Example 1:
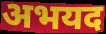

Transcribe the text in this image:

अभयद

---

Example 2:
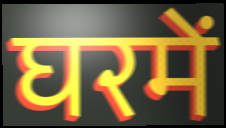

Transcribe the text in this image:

घरमें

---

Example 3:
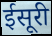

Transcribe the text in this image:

ईसूरी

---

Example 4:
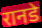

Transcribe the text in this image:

रानडे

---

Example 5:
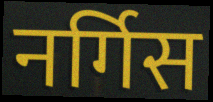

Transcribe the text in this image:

नर्गिस